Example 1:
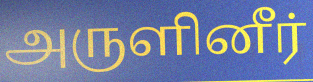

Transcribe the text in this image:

அருளினீர்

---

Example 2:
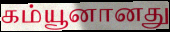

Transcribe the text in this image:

கம்யூனானது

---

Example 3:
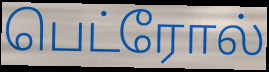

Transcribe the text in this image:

பெட்ரோல்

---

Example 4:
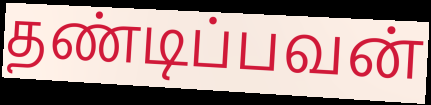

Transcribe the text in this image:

தண்டிப்பவன்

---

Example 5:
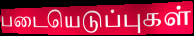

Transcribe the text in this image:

படையெடுப்புகள்